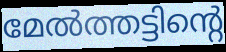
മേൽത്തട്ടിന്റെ